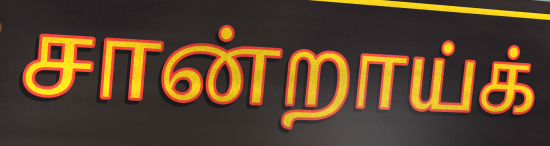
சான்றாய்க்